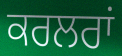
ਕਰਲਰਾਂ